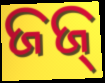
ଜଜ୍